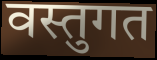
वस्तुगत